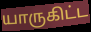
யாருகிட்ட